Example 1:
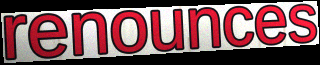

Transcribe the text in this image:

renounces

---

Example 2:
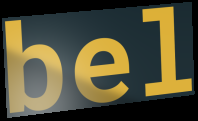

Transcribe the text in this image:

bel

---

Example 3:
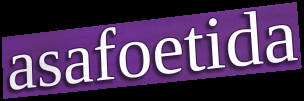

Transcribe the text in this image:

asafoetida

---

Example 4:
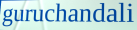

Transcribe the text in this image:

guruchandali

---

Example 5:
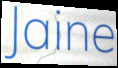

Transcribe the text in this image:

Jaine